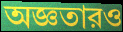
অজ্ঞতারও